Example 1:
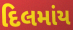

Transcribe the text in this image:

દિલમાંય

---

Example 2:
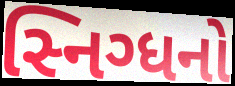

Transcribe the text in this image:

સ્નિગ્ધનો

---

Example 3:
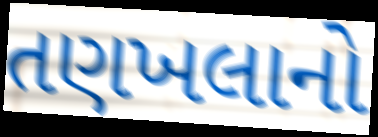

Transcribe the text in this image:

તણખલાનો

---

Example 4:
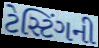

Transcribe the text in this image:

ટેસ્ટિંગની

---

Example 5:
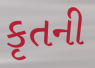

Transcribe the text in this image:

કૃતની